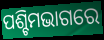
ପଶ୍ଚିମଭାଗରେ